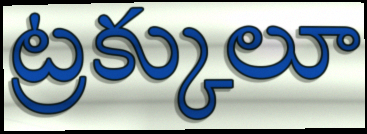
ట్రక్కులూ